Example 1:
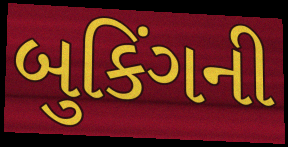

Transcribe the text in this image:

બુકિંગની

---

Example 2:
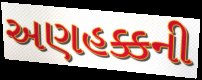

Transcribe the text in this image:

અણહક્કની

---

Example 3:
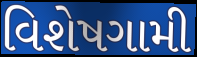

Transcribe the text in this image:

વિશેષગામી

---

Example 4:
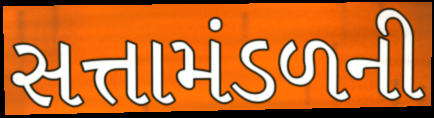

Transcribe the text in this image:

સત્તામંડળની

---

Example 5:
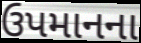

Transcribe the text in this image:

ઉપમાનના